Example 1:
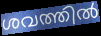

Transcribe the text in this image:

ശവത്തിൽ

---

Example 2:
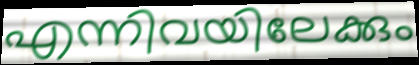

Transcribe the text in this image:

എന്നിവയിലേക്കും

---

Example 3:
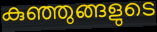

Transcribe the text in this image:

കുഞ്ഞുങ്ങളുടെ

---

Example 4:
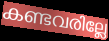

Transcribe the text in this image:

കണ്ടവരില്ലേ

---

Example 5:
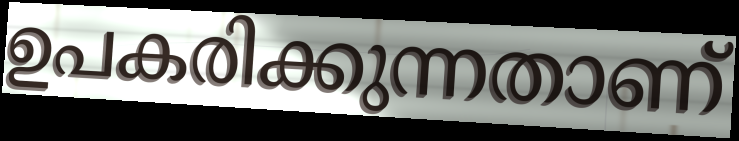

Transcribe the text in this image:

ഉപകരിക്കുന്നതാണ്